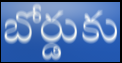
బోర్డుకు